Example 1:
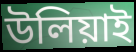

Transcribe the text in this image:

উলিয়াই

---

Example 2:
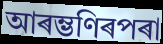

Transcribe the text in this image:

আৰম্ভণিৰপৰা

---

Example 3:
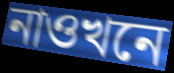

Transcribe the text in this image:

নাওখনে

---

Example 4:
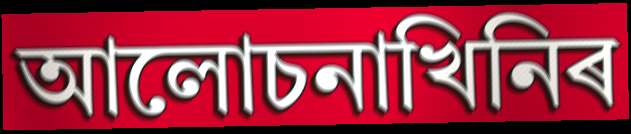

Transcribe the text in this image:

আলোচনাখিনিৰ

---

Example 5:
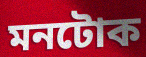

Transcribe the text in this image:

মনটোক